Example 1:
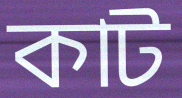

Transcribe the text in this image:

কাট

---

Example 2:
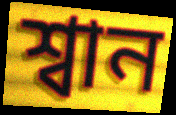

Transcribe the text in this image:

শ্বান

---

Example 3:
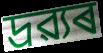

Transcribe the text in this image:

দ্ৰৱ্যৰ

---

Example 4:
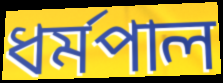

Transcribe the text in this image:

ধৰ্মপাল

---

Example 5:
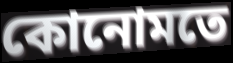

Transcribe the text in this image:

কোনোমতে